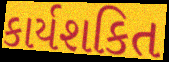
કાર્યશકિત